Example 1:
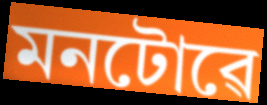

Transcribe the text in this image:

মনটোৱে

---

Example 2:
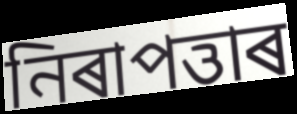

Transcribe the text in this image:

নিৰাপত্তাৰ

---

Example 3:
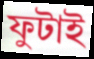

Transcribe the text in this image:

ফুটাই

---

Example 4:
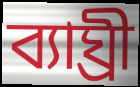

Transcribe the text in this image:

ব্যাঘ্ৰী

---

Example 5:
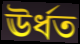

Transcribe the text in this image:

ঊৰ্ধত